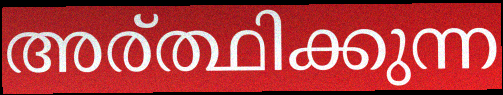
അര്ത്ഥിക്കുന്ന